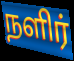
நளிர்